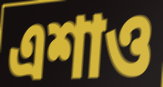
এশাও